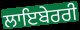
ਲਾਇਬੇਰਰੀ